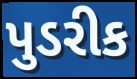
પુડરીક